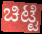
ಚಿಟ್ಟೆ